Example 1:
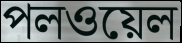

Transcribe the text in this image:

পলওয়েল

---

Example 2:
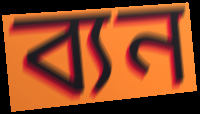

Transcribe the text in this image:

ব্যন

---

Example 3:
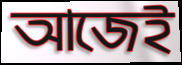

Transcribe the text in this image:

আজেই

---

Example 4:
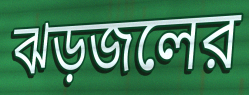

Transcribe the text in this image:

ঝড়জলের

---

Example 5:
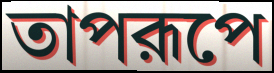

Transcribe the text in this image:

তাপরূপে